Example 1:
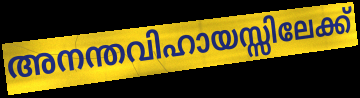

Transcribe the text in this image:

അനന്തവിഹായസ്സിലേക്ക്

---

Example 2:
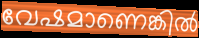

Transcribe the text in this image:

വേഷമാണെങ്കിൽ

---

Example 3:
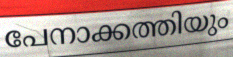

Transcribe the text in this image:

പേനാക്കത്തിയും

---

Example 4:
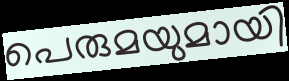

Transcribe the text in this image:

പെരുമയുമായി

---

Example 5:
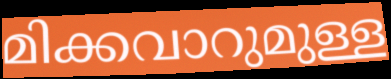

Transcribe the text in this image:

മിക്കവാറുമുള്ള